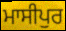
ਮਾਸੀਪੁਰ